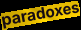
paradoxes